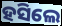
ହସିଲେ